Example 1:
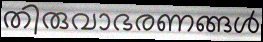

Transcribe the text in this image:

തിരുവാഭരണങ്ങൾ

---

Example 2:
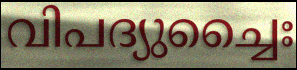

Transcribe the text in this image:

വിപദ്യുച്ചൈഃ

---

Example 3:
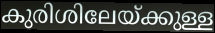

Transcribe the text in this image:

കുരിശിലേയ്ക്കുള്ള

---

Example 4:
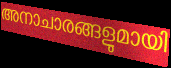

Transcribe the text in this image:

അനാചാരങ്ങളുമായി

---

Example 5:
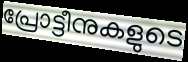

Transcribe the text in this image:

പ്രോട്ടീനുകളുടെ